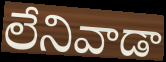
లేనివాడా